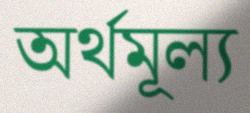
অর্থমূল্য